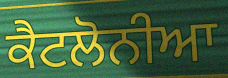
ਕੈਟਲੋਨੀਆ